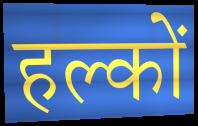
हल्कों